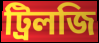
ট্রিলজি